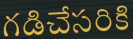
గడిచేసరికి